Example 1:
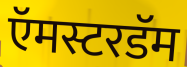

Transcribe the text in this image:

ऍमस्टरडॅम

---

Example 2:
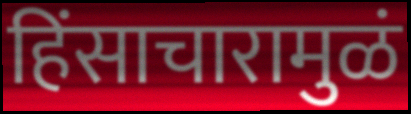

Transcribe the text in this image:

हिंसाचारामुळं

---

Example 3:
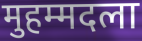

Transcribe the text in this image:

मुहम्मदला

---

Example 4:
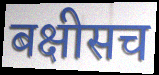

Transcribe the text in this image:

बक्षीसच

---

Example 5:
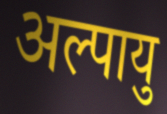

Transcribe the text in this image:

अल्पायु